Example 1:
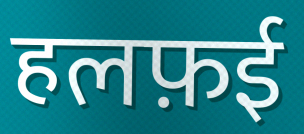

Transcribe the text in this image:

हलफ़ई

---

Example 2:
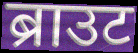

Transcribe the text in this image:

ब्राउट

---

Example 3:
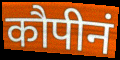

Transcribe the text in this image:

कौपीनं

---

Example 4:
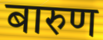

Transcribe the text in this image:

बारुण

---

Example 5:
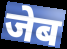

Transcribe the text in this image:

जेब